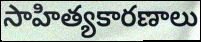
సాహిత్యకారణాలు